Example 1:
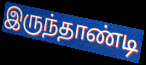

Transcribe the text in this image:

இருந்தாண்டி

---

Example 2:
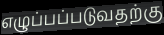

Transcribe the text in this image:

எழுப்பப்படுவதற்கு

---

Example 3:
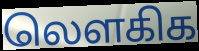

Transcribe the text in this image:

லௌகிக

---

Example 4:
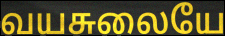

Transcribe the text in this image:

வயசுலையே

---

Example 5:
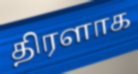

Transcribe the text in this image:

திரளாக